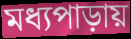
মধ্যপাড়ায়